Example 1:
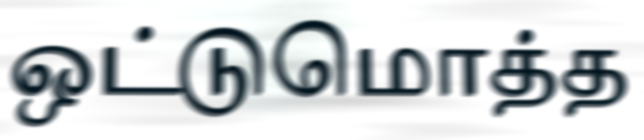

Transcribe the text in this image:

ஒட்டுமொத்த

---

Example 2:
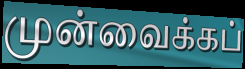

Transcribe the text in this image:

முன்வைக்கப்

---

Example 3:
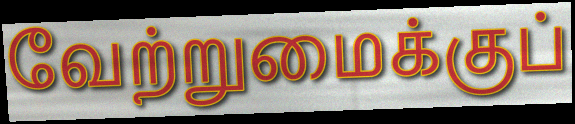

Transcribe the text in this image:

வேற்றுமைக்குப்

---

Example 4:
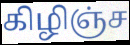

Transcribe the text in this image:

கிழிஞ்ச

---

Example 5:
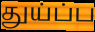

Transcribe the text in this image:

துய்ப்ப